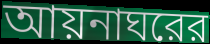
আয়নাঘরের